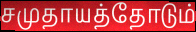
சமுதாயத்தோடும்